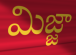
మిజ్జా